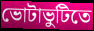
ভোটাভুটিতে